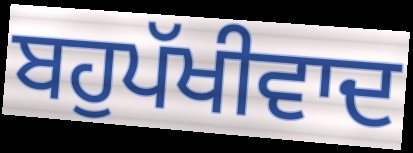
ਬਹੁਪੱਖੀਵਾਦ